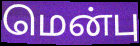
மென்பு